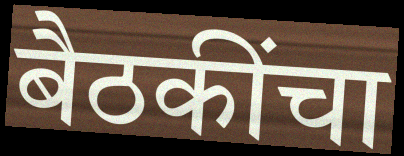
बैठकींचा